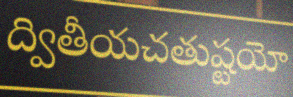
ద్వితీయచతుష్టయో